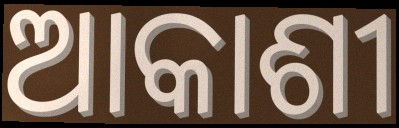
ଆକାଶୀ